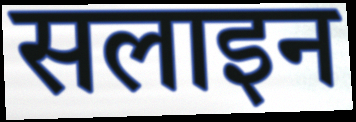
सलाइन